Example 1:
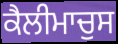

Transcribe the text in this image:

ਕੈਲੀਮਾਚੁਸ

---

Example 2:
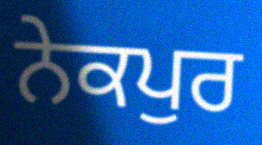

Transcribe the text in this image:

ਨੇਕਪੁਰ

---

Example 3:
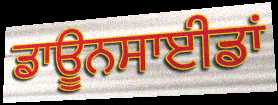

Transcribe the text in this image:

ਡਾਊਨਸਾਈਡਾਂ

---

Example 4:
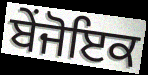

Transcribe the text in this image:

ਬੇਂਜੋਇਕ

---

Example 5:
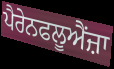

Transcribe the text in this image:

ਪੈਰੇਨਫਲੂਐਂਜ਼ਾ